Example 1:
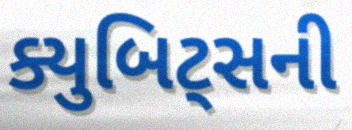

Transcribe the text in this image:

ક્યુબિટ્સની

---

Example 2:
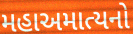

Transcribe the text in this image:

મહાઅમાત્યનો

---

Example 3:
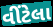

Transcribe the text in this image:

વીંટેલા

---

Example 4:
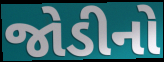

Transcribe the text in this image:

જોડીનો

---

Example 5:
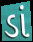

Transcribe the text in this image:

ડાં